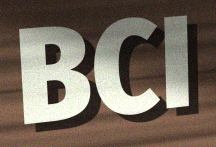
BCI